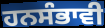
ਹਨਸੰਭਾਵੀ